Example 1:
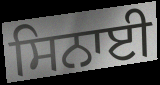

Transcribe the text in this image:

ਸਿਨਾਈ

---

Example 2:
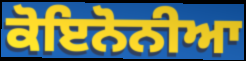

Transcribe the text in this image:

ਕੋਇਨੋਨੀਆ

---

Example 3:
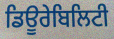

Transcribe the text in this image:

ਡਿਊਰੇਬਿਲਿਟੀ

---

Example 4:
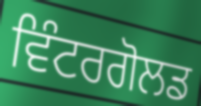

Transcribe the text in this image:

ਵਿੰਟਰਗੋਲਡ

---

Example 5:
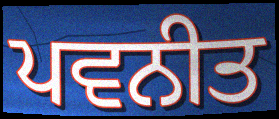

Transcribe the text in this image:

ਪਵਨੀਤ